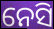
ନେସି